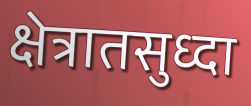
क्षेत्रातसुध्दा